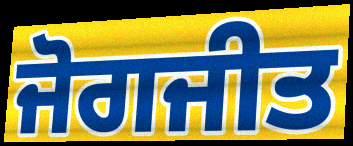
ਜੋਗਜੀਤ